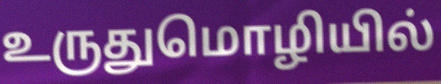
உருதுமொழியில்